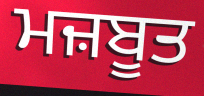
ਮਜ਼ਬੂਤ